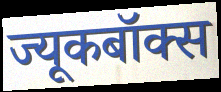
ज्यूकबॉक्स